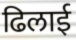
ढिलाई